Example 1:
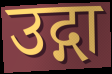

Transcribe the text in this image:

उद्गा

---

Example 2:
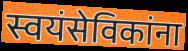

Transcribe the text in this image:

स्वयंसेविकांना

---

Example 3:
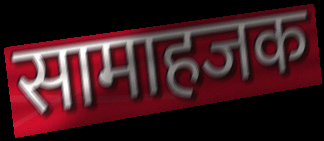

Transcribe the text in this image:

सामाहजक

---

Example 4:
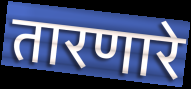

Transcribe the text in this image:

तारणारे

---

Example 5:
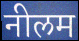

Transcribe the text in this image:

नीलम